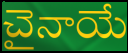
చైనాయే